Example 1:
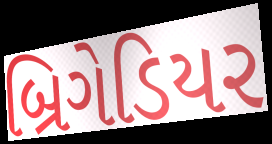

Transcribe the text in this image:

બ્રિગેડિયર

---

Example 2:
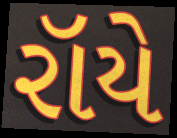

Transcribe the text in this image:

રૉયે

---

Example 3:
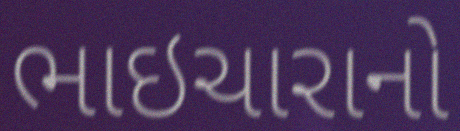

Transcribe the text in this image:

ભાઇચારાનો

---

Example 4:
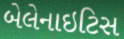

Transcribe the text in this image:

બેલેનાઇટિસ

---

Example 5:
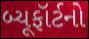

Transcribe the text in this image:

બ્યૂફૉર્ટનો